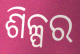
ଶିଳ୍ପର